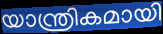
യാന്ത്രികമായി